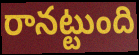
రానట్టుంది